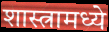
शास्त्रामध्ये